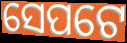
ସେପଟେ